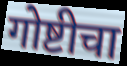
गोष्टीचा